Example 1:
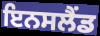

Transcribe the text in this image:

ਇਨਸਲੈਂਡ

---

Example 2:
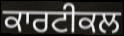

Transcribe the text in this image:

ਕਾਰਟੀਕਲ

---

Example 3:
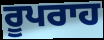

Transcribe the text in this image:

ਰੂਪਰਾਹ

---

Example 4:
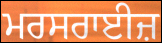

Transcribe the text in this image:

ਮਰਸਰਾਈਜ਼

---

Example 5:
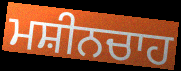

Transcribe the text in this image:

ਮਸ਼ੀਨਚਾਹ